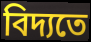
বিদ্যতে